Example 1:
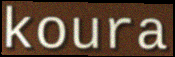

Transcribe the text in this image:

koura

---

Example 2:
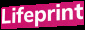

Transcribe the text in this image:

Lifeprint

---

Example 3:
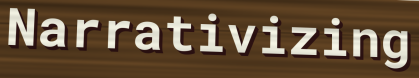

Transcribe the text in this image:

Narrativizing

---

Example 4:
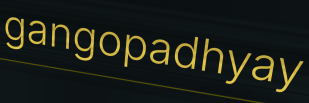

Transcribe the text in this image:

gangopadhyay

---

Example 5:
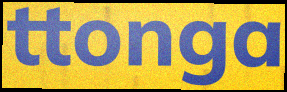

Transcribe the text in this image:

ttonga